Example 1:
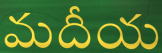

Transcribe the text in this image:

మదీయ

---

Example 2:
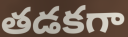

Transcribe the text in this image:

తడకగా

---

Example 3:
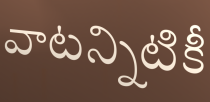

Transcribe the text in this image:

వాటన్నిటికీ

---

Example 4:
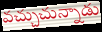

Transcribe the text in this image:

వచ్చుచున్నాడు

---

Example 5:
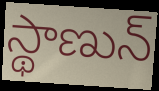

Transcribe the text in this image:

స్థాణున్